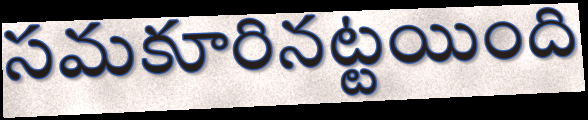
సమకూరినట్టయింది